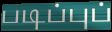
படிப்புப்